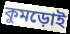
কুমড়োই